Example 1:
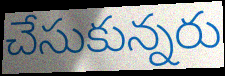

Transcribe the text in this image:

చేసుకున్నరు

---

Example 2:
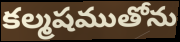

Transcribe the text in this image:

కల్మషముతోను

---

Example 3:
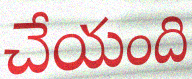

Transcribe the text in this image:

చేయంది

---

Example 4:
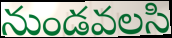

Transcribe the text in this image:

నుండవలసి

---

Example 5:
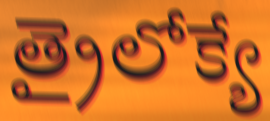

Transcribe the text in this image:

త్రైలోక్యే